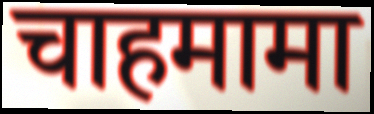
चाहमामा